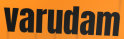
varudam